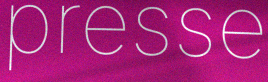
presse